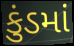
કુંડમાં